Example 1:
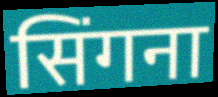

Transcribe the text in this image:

सिंगना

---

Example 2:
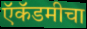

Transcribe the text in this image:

ऍकॅडमीचा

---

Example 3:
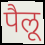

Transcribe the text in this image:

पैलू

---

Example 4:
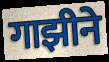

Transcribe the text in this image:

गाझीने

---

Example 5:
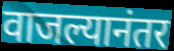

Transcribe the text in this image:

वाजल्यानंतर